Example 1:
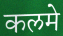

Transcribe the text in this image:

कलमे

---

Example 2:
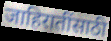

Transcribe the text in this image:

जाहिरातींसाठी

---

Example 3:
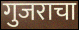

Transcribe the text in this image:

गुजराचा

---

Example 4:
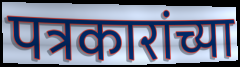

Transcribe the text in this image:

पत्रकारांच्या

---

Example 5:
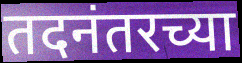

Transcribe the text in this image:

तदनंतरच्या